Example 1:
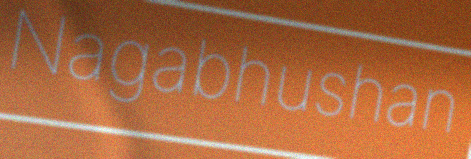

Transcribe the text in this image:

Nagabhushan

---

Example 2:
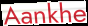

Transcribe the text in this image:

Aankhe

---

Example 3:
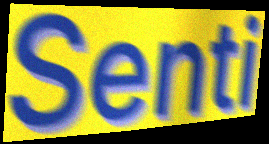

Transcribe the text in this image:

Senti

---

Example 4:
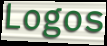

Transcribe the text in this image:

Logos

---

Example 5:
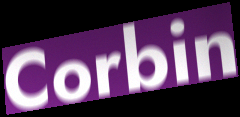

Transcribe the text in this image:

Corbin